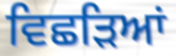
ਵਿਛੜਿਆਂ